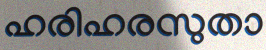
ഹരിഹരസുതാ